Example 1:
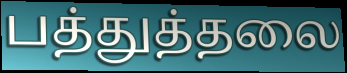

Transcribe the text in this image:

பத்துத்தலை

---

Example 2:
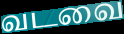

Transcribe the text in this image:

வடவை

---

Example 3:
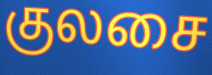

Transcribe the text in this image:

குலசை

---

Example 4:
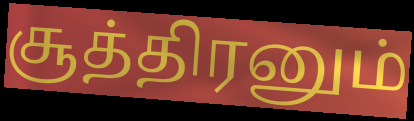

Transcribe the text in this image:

சூத்திரனும்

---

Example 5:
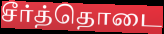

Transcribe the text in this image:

சீர்த்தொடை